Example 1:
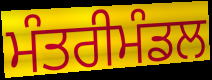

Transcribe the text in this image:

ਮੰਤਰੀਮੰਡਲ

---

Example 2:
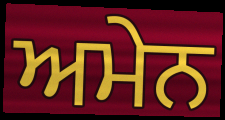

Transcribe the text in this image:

ਅਮੇਨ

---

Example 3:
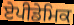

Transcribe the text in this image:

ਏਪੀਡੇਮਿਕ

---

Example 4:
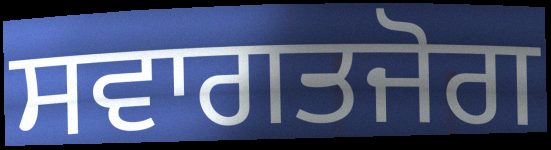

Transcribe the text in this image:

ਸਵਾਗਤਜੋਗ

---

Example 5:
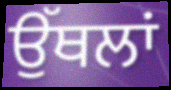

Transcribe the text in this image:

ਉੱਥਲਾਂ